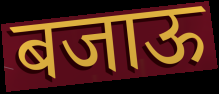
बजाऊ